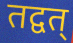
तद्वत्